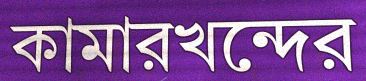
কামারখন্দের